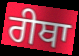
ਰੀਥਾ